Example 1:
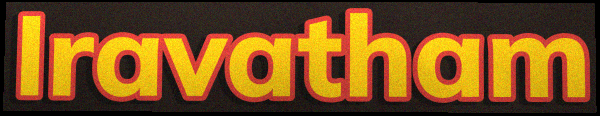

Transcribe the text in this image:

Iravatham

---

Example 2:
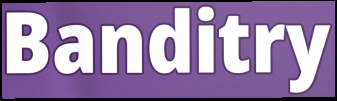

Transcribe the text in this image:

Banditry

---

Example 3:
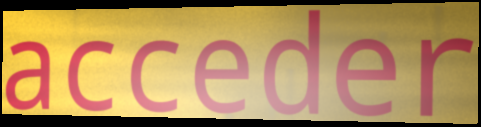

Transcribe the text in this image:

acceder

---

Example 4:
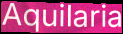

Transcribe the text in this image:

Aquilaria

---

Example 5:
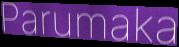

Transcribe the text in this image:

Parumaka